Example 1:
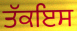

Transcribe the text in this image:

ਤੱਕਇਸ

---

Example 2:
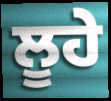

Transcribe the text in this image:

ਲੂਹੇ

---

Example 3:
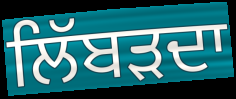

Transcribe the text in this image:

ਲਿੱਬੜਦਾ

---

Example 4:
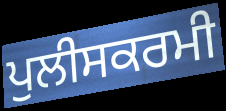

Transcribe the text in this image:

ਪੁਲੀਸਕਰਮੀ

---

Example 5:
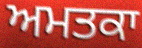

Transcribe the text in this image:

ਅਮਤਕਾ